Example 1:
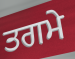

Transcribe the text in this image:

ਤਗਮੇ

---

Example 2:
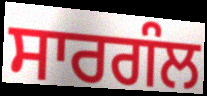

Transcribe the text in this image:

ਸਾਰਗੰਲ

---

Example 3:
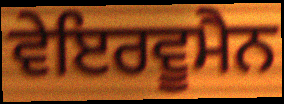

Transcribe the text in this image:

ਵੇਇਰਵੂਮੈਨ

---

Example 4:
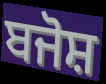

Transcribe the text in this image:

ਬਜੋਸ਼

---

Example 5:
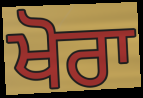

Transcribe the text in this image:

ਖੋਰਾ